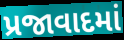
પ્રજાવાદમાં